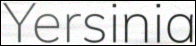
Yersinia